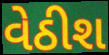
વેઠીશ